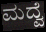
ಮದ್ವೆ